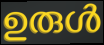
ഉരുൾ